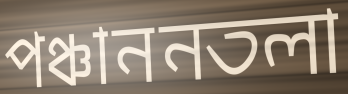
পঞ্চাননতলা